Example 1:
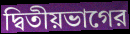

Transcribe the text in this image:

দ্বিতীয়ভাগের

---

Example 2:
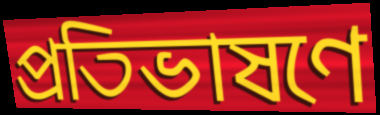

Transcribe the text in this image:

প্রতিভাষণে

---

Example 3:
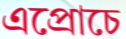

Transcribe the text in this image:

এপ্রোচে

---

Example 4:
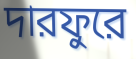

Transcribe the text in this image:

দারফুরে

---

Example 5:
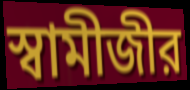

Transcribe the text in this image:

স্বামীজীর